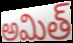
అమిత్